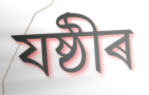
যষ্ঠীৰ